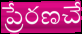
ప్రేరణచే